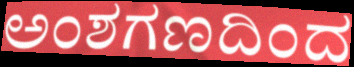
ಅಂಶಗಣದಿಂದ